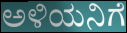
ಅಳಿಯನಿಗೆ